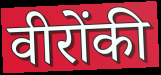
वीरोंकी